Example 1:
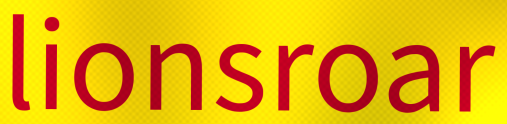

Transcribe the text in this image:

lionsroar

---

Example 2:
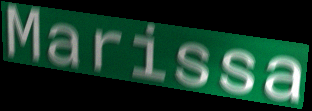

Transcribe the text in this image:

Marissa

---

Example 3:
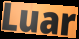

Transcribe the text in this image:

Luar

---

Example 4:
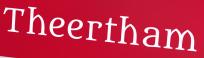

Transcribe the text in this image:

Theertham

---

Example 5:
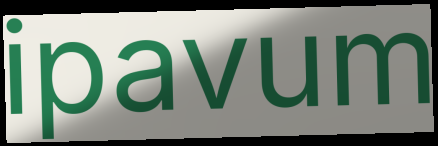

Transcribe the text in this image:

ipavum